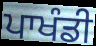
ਪਾਖੰਡੀ